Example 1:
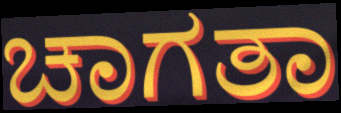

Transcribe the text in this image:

ಚಾಗತಾ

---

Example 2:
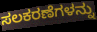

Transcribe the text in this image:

ಸಲಕರಣೆಗಳನ್ನು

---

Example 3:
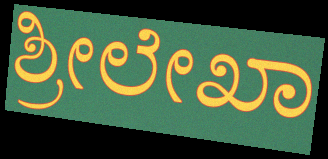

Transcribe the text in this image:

ಶ್ರೀಲೇಖಾ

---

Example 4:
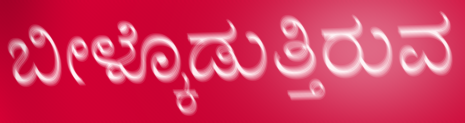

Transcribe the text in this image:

ಬೀಳ್ಕೊಡುತ್ತಿರುವ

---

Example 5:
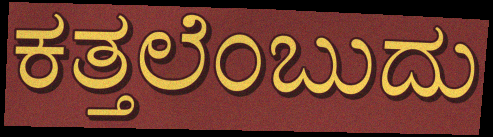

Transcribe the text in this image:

ಕತ್ತಲೆಂಬುದು